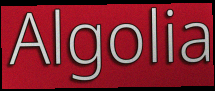
Algolia